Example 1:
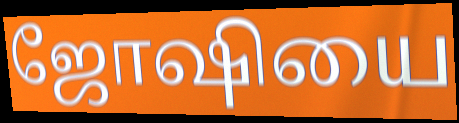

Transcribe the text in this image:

ஜோஷியை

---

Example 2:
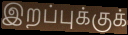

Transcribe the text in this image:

இறப்புக்குக்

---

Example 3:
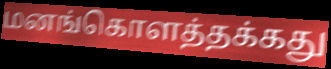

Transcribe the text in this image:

மனங்கொளத்தக்கது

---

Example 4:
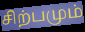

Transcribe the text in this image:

சிற்பமும்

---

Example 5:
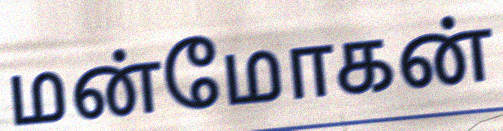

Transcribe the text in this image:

மன்மோகன்